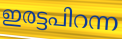
ഇരട്ടപിറന്ന